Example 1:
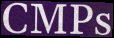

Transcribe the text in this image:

CMPs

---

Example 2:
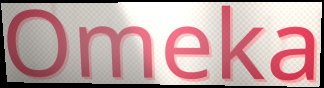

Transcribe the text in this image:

Omeka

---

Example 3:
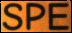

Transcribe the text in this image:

SPE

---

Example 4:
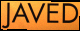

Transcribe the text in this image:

JAVED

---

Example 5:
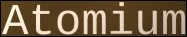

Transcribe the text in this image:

Atomium